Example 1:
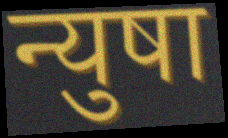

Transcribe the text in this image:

न्युषा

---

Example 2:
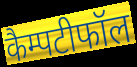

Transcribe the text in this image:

कैम्पटीफॉल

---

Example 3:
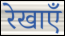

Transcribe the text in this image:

रेखाएँ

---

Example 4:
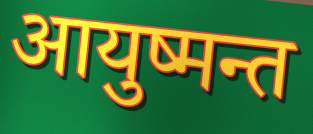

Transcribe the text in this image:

आयुष्मन्त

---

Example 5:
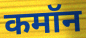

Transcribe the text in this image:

कमॉन